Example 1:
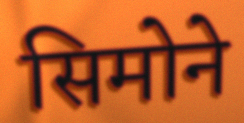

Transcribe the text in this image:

सिमोने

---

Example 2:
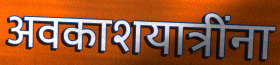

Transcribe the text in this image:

अवकाशयात्रींना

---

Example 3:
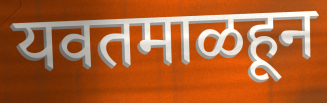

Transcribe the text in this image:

यवतमाळहून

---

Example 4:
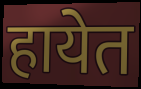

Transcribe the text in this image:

हायेत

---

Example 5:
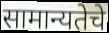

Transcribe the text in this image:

सामान्यतेचे